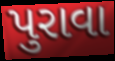
પુરાવા